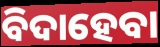
ବିଦାହେବା